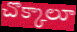
చొక్కాలూ